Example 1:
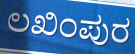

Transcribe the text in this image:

ಲಖಿಂಪುರ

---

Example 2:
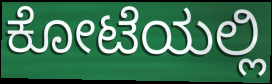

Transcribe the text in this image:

ಕೋಟೆಯಲ್ಲಿ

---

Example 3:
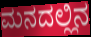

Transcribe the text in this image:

ಮನದಲ್ಲಿನ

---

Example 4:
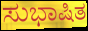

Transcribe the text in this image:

ಸುಭಾಷಿತ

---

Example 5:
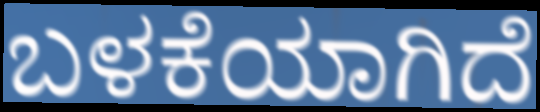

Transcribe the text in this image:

ಬಳಕೆಯಾಗಿದೆ